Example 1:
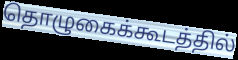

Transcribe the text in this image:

தொழுகைக்கூடத்தில்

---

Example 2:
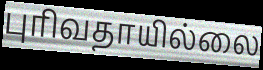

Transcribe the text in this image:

புரிவதாயில்லை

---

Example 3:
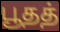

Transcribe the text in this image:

பூதத்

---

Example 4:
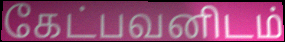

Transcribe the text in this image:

கேட்பவனிடம்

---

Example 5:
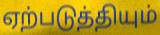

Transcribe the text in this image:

ஏற்படுத்தியும்